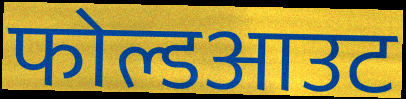
फोल्डआउट